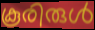
കൂരിരുൾ